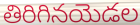
తిరిగినయెడల